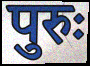
पुरुः